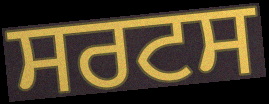
ਸਰਟਸ